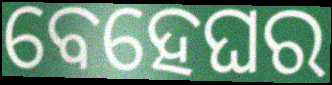
ବେହେଘର